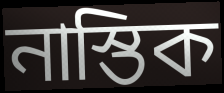
নাস্তিক